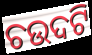
ଚଉଦଟି